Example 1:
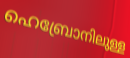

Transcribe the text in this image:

ഹെബ്രോനിലുള്ള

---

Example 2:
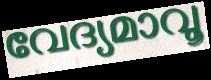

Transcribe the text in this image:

വേദ്യമാവൂ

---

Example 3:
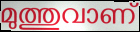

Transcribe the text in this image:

മുത്തുവാണ്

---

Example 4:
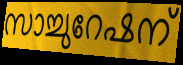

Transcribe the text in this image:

സാച്ചുറേഷന്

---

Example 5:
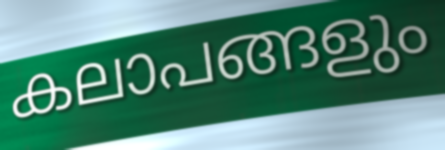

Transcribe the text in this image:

കലാപങ്ങളും